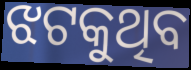
ଝଟକୁଥିବ